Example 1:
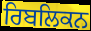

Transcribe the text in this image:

ਰਿਬਲਿਕਨ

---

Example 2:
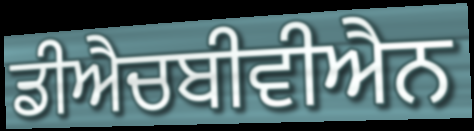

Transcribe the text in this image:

ਡੀਐਚਬੀਵੀਐਨ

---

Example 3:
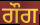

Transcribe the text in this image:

ਗੌਗ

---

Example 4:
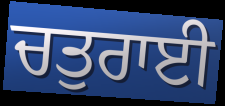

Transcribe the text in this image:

ਚਤੁਰਾਈ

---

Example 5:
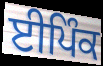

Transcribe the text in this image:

ਈਪਿੰਕ